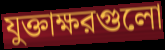
যুক্তাক্ষরগুলো